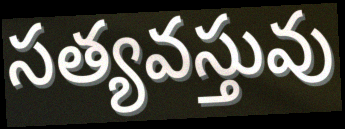
సత్యవస్తువు